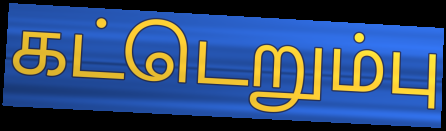
கட்டெறும்பு